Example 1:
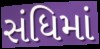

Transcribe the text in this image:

સંધિમાં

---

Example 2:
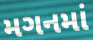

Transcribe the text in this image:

મગનમાં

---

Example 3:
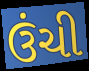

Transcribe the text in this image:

ઉંચી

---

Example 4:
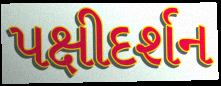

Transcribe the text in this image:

પક્ષીદર્શન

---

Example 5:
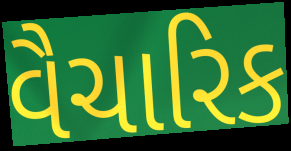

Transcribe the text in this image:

વૈચારિક